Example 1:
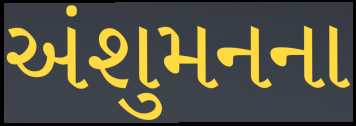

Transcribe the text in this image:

અંશુમનના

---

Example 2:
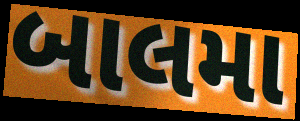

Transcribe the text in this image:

બાલમા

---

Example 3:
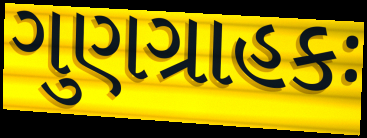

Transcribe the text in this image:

ગુણગ્રાહકઃ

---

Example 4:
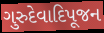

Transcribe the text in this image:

ગુરુદેવાદિપૂજન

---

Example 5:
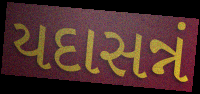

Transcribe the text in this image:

યદાસન્નં